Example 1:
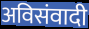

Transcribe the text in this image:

अविसंवादी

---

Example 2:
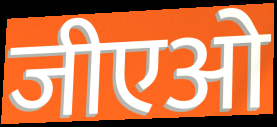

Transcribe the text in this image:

जीएओ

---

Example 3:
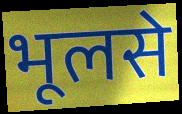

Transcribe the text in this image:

भूलसे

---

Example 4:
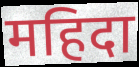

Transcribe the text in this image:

महिदा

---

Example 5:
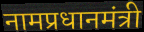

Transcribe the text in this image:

नामप्रधानमंत्री